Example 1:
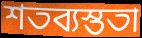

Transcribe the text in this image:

শতব্যস্ততা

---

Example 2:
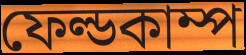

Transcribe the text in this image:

ফেল্ডকাম্প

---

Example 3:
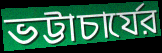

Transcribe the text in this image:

ভট্টাচার্যের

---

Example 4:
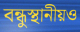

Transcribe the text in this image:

বন্ধুস্থানীয়ও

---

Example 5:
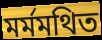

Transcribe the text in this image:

মর্মমথিত